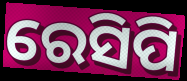
ରେସିପି